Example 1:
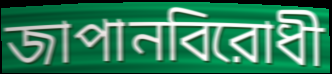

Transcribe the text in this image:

জাপানবিরোধী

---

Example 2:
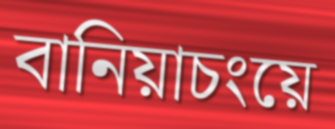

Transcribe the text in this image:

বানিয়াচংয়ে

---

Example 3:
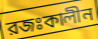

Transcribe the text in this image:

রজঃকালীন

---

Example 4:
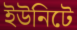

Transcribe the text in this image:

ইউনিটে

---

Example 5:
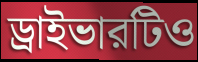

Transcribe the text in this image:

ড্রাইভারটিও